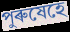
পুৰুষেহে